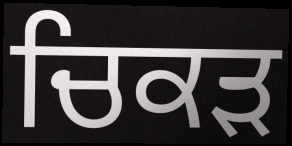
ਚਿਕੜ